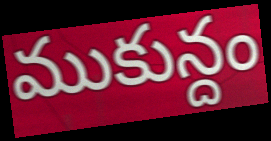
ముకున్దం